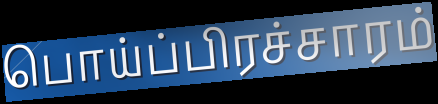
பொய்ப்பிரச்சாரம்